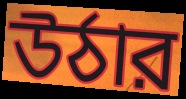
উঠার